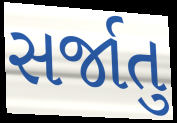
સર્જાતુ